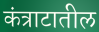
कंत्राटातील